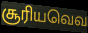
சூரியவெவ